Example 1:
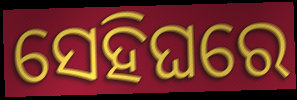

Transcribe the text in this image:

ସେହିଘରେ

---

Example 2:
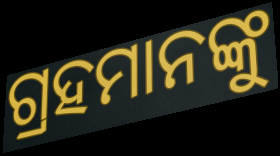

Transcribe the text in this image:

ଗ୍ରହମାନଙ୍କୁ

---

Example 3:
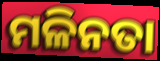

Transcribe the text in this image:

ମଳିନତା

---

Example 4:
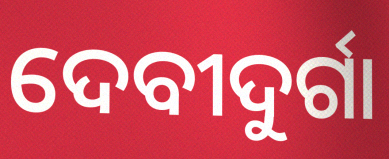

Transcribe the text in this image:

ଦେବୀଦୁର୍ଗା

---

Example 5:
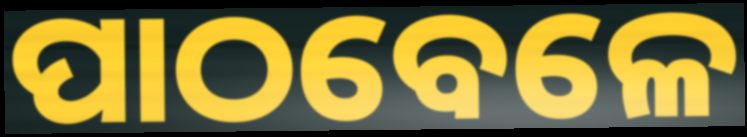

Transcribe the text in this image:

ପାଠବେଳେ